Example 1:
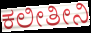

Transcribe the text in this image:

ಕಲೀತೀನಿ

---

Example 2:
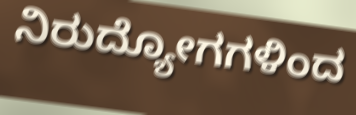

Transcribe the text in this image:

ನಿರುದ್ಯೋಗಗಳಿಂದ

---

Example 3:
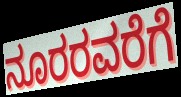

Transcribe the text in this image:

ನೂರರವರೆಗೆ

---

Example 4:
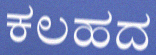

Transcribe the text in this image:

ಕಲಹದ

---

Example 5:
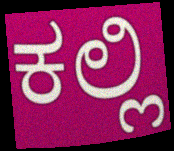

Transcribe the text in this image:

ಕಲ್ಲಿ